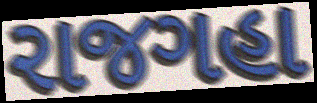
રાજગહા